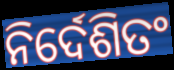
ନିର୍ଦେଶିତଂ